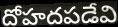
దోహదపడేవి